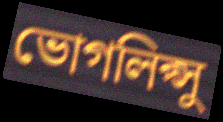
ভোগলিপ্সু